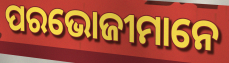
ପରଭୋଜୀମାନେ